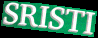
SRISTI